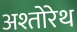
अश्तोरेथ